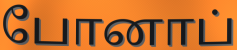
போனாப்